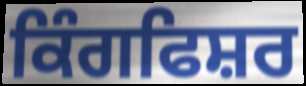
ਕਿੰਗਫਿਸ਼ਰ